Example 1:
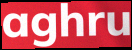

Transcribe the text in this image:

aghru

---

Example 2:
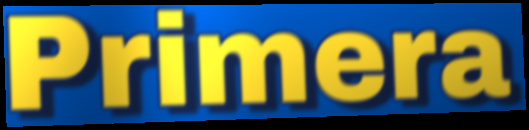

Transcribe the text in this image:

Primera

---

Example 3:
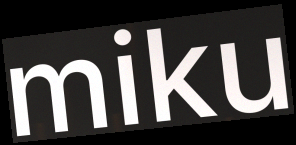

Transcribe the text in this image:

miku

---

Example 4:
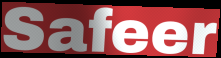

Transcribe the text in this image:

Safeer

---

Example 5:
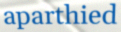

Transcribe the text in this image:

aparthied